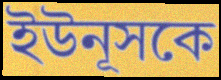
ইউনূসকে